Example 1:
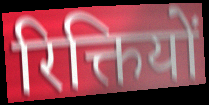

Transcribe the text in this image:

रिक्तियों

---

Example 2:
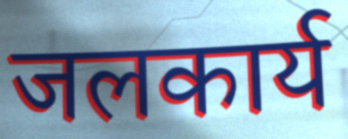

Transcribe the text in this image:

जलकार्य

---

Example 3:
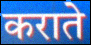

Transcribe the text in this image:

कराते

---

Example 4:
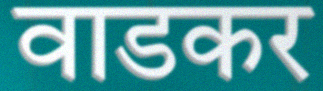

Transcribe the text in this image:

वाडकर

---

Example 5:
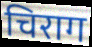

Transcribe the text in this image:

चिराग